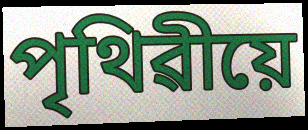
পৃথিৱীয়ে